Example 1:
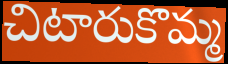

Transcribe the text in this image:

చిటారుకొమ్మ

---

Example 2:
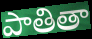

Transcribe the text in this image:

పాతితా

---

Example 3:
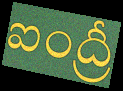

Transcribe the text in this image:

ఐంద్రీ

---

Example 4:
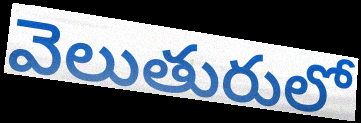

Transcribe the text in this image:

వెలుతురులో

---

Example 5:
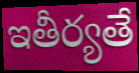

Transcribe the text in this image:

ఇతీర్యతే